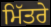
ਮਿੱਤਰੇ